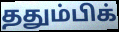
ததும்பிக்